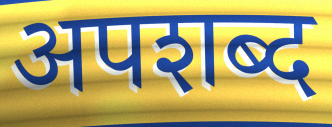
अपशब्द